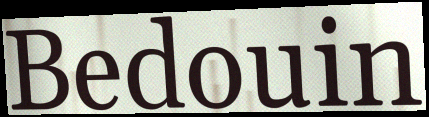
Bedouin